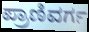
ಪ್ರಾಣಿವರ್ಗ